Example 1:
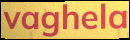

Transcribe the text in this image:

vaghela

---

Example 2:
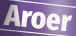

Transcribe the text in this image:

Aroer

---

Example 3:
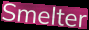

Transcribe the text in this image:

Smelter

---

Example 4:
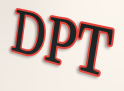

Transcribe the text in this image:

DPT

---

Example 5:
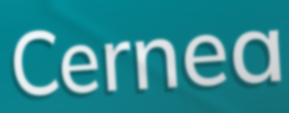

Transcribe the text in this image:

Cernea